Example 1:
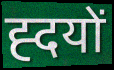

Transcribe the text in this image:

ह्दयों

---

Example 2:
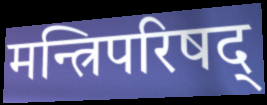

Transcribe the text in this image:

मन्त्रिपरिषद्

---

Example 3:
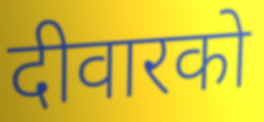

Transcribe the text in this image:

दीवारको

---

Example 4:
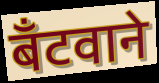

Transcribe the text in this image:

बँटवाने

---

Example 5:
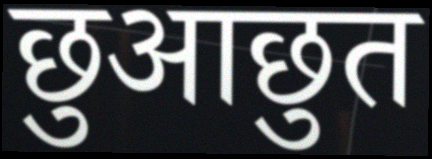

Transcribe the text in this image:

छुआछुत